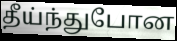
தீய்ந்துபோன